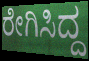
ರೇಗಿಸಿದ್ದ